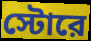
স্টোরে